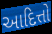
આદિત્તો